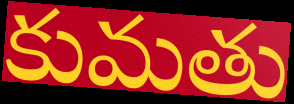
కుమతు